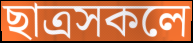
ছাত্ৰসকলে